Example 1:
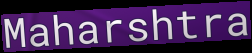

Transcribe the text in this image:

Maharshtra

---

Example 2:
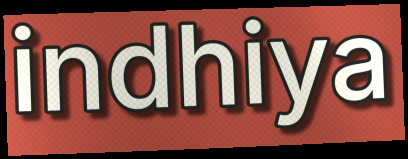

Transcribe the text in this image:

indhiya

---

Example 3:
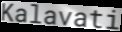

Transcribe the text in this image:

Kalavati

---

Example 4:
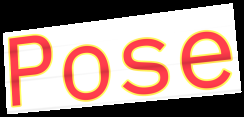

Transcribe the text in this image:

Pose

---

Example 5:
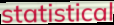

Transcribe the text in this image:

statistical